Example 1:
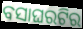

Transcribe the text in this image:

ବସାଘରଟିର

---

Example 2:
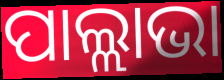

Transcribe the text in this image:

ପାଲ୍ଲାଭା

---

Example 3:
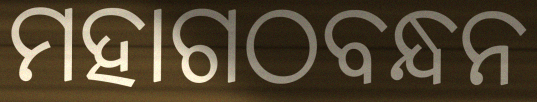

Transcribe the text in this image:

ମହାଗଠବନ୍ଧନ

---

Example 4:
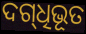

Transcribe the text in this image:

ଦଗ୍‍ଧିଭୂତ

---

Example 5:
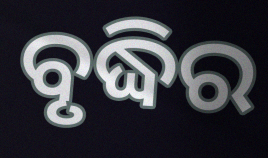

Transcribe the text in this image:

ବୃଦ୍ଧିର